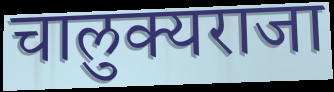
चालुक्यराजा